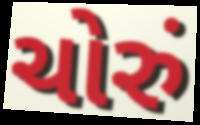
ચોરું